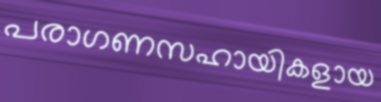
പരാഗണസഹായികളായ